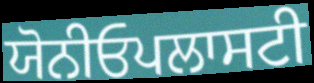
ਯੋਨੀਓਪਲਾਸਟੀ